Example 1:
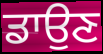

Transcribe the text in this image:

ਡਾਉਣ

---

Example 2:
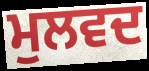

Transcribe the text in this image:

ਮੁਲਵਦ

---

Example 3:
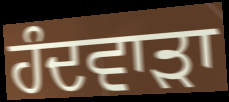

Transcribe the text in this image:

ਹੰਦਵਾੜਾ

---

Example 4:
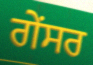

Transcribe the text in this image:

ਗੇਂਸਰ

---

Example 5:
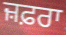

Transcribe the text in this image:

ਜ਼ਫ਼ਰਾ